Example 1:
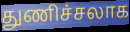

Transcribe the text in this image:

துணிச்சலாக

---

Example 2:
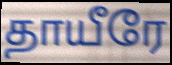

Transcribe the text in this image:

தாயீரே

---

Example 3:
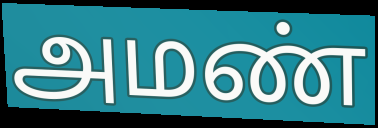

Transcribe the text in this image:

அமண்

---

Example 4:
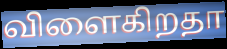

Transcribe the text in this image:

விளைகிறதா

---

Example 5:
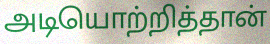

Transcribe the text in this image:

அடியொற்றித்தான்